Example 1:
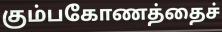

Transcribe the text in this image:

கும்பகோணத்தைச்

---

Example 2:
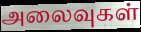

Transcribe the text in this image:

அலைவுகள்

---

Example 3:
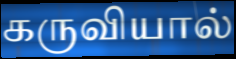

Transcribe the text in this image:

கருவியால்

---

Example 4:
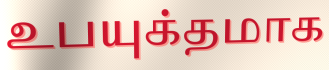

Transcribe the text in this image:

உபயுக்தமாக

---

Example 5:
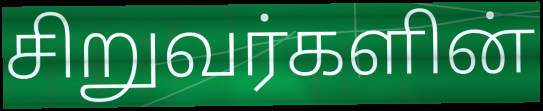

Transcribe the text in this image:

சிறுவர்களின்